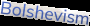
Bolshevism